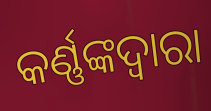
କର୍ଣ୍ଣଙ୍କଦ୍ୱାରା